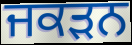
ਜਕੜਨ